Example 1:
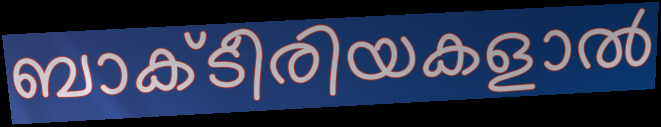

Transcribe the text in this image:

ബാക്ടീരിയകളാൽ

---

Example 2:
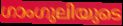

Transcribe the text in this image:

ഗാംഗുലിയുടെ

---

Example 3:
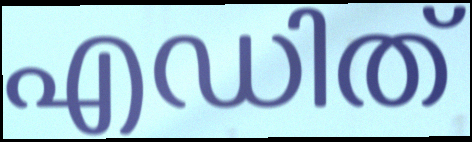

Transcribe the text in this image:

എഡിത്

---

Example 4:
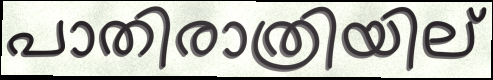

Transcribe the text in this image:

പാതിരാത്രിയില്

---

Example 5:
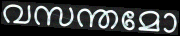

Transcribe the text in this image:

വസന്തമോ